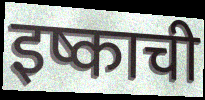
इष्काची